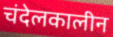
चंदेलकालीन